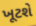
ખૂટશે